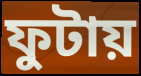
ফুটায়